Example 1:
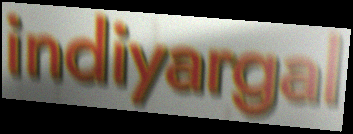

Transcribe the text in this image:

indiyargal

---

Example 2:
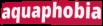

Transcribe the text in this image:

aquaphobia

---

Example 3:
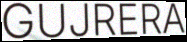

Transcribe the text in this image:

GUJRERA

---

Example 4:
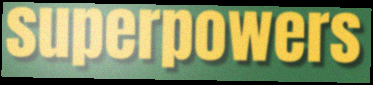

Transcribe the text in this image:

superpowers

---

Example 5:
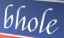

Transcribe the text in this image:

bhole